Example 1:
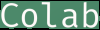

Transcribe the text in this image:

Colab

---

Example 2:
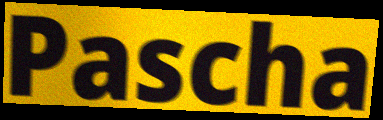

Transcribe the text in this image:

Pascha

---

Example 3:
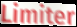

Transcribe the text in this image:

Limiter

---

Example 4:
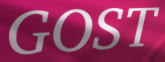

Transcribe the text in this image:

GOST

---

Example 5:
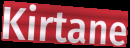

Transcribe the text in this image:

Kirtane